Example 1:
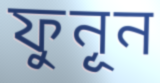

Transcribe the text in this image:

ফুনূন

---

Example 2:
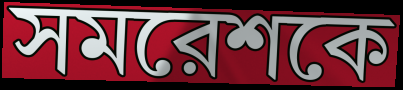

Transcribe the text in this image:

সমরেশকে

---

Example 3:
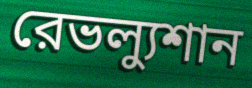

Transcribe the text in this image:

রেভল্যুশান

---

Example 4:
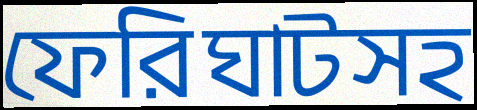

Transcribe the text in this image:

ফেরিঘাটসহ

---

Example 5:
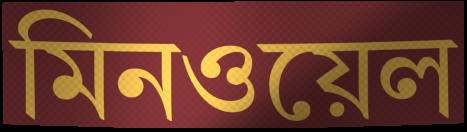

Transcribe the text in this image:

মিনওয়েল